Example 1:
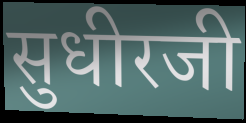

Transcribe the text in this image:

सुधीरजी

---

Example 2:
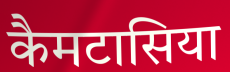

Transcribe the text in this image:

कैमटासिया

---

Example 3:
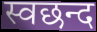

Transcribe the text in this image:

स्वछन्द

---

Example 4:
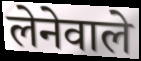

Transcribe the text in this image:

लेनेवाले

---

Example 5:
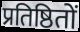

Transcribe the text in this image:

प्रतिष्ठितों